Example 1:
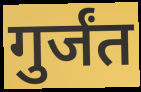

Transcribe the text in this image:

गुर्जंत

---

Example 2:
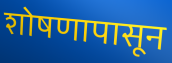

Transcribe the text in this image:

शोषणापासून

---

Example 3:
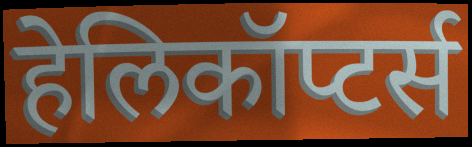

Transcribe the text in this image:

हेलिकॉप्टर्स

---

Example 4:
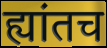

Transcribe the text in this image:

ह्यांतच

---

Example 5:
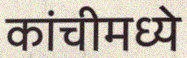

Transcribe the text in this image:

कांचीमध्ये